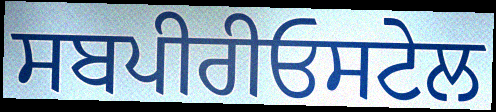
ਸਬਪੀਰੀਓਸਟੇਲ